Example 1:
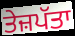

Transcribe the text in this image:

ਤੇਜ਼ਪੱਤਾ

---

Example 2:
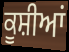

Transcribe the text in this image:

ਕੂਸ਼ੀਆਂ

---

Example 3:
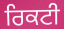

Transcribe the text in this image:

ਰਿਕਟੀ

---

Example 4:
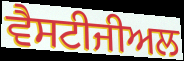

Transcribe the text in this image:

ਵੈਸਟੀਜੀਅਲ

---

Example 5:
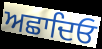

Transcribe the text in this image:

ਅਛਾਦਿਓ